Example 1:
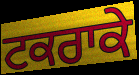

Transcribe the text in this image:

ਟਕਰਾਕੇ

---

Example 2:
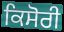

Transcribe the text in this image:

ਕਿਸੋਰੀ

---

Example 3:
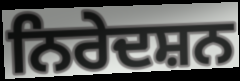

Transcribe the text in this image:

ਨਿਰੇਦਸ਼ਨ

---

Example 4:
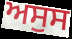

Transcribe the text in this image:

ਅਸੁਸ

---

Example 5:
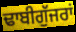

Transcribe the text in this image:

ਢਾਬੀਗੁੱਜਰਾਂ